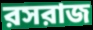
রসরাজ